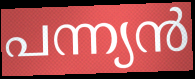
പന്ന്യൻ